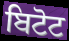
ਬਿਟੋਟ